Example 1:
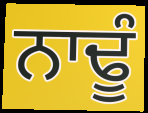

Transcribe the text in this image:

ਨਾਢੂੰ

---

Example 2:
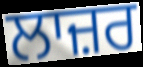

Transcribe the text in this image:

ਲਾਜ਼ਰ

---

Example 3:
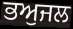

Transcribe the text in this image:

ਭਅੁਜਲ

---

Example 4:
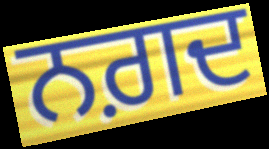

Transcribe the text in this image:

ਨਗ਼ਦ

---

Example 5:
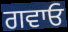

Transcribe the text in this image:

ਗਵਾਓ